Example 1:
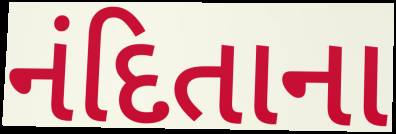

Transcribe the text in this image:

નંદિતાના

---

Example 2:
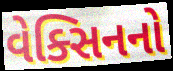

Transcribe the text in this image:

વેક્સિનનો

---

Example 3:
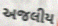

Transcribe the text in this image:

અજલીય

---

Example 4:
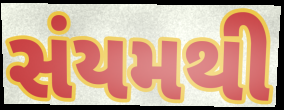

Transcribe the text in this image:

સંયમથી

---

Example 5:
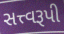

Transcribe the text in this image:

સત્ત્વરૂપી